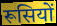
रूसियों